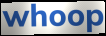
whoop